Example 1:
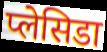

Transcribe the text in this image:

प्लेसिडा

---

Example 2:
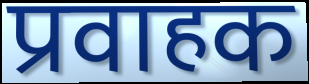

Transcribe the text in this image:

प्रवाहक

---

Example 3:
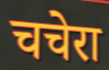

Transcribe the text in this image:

चचेरा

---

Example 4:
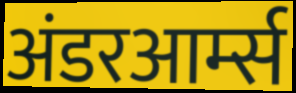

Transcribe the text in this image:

अंडरआर्म्‍स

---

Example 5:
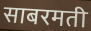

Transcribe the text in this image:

साबरमती